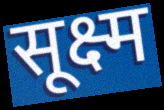
सूक्ष्म